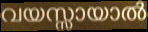
വയസ്സായാൽ